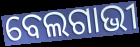
ବେଲଗାଭୀ